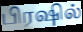
பிரஷில்